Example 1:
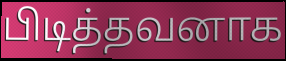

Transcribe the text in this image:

பிடித்தவனாக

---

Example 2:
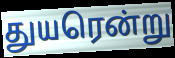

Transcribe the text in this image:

துயரென்று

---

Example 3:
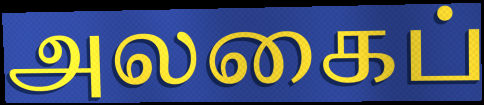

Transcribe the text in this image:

அலகைப்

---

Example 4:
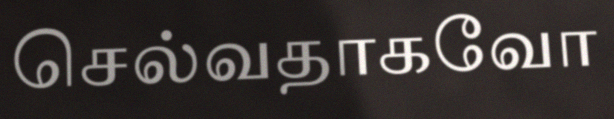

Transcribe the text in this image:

செல்வதாகவோ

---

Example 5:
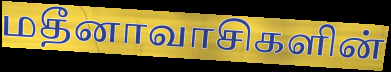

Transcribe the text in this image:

மதீனாவாசிகளின்